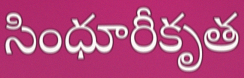
సింధూరీకృత